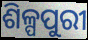
ଶିଳ୍ପପୁରୀ